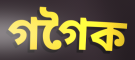
গগৈক